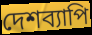
দেশব্যাপি